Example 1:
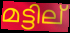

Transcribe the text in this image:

മട്ടില്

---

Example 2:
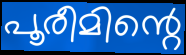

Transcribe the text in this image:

പൂരീമിന്റെ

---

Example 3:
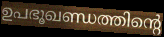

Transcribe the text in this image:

ഉപഭൂഖണ്ഡത്തിന്റെ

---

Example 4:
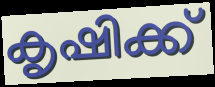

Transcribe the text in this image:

കൃഷിക്ക്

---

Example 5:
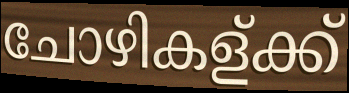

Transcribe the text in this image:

ചോഴികള്ക്ക്